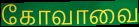
கோவாவை